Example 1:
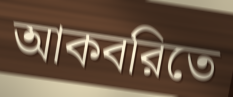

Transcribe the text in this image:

আকবরিতে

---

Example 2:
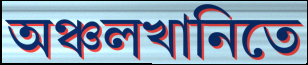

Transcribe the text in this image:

অঞ্চলখানিতে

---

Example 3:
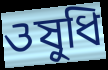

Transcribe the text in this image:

ওষুধি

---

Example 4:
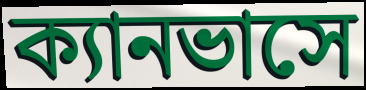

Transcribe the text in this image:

ক্যানভাসে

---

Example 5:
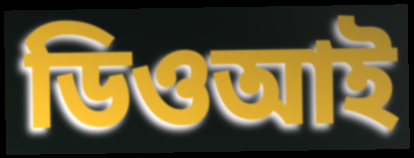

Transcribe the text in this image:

ডিওআই